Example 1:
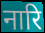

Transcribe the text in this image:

नारि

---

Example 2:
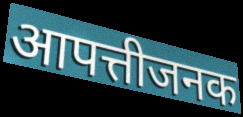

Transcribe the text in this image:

आपत्तीजनक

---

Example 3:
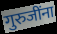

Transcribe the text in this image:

गुरुजींना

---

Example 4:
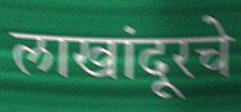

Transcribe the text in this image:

लाखांदूरचे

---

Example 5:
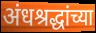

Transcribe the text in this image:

अंधश्रद्धांच्या